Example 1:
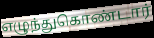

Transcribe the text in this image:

எழுந்துகொண்டார்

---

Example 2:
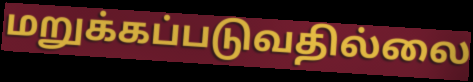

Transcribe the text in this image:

மறுக்கப்படுவதில்லை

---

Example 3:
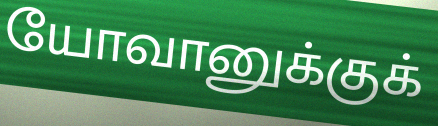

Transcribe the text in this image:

யோவானுக்குக்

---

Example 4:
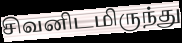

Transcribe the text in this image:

சிவனிடமிருந்து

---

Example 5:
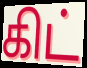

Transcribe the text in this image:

கிட்